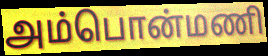
அம்பொன்மணி